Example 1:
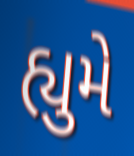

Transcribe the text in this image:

હ્યુમે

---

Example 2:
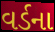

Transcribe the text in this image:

વર્ડના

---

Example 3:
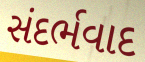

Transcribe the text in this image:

સંદર્ભવાદ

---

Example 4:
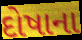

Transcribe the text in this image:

દોષાના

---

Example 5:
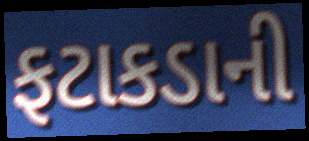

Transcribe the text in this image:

ફટાકડાની